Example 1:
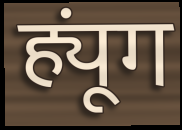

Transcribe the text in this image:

ह्यूंग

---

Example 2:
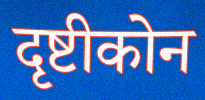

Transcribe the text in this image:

दृष्टीकोन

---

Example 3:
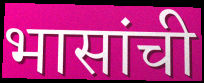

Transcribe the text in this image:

भासांची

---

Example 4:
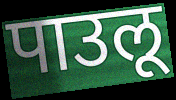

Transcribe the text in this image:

पाउलू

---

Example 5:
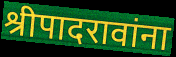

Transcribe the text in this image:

श्रीपादरावांना